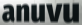
anuvu